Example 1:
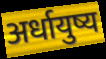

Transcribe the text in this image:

अर्धायुष्य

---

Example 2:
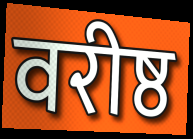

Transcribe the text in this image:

वरीष्ठ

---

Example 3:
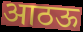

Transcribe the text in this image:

आठऊ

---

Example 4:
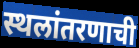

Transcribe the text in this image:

स्थलांतरणाची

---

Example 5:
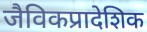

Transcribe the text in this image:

जैविकप्रादेशिक